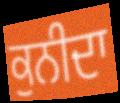
ਕੁਨੀਦਾ